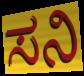
ಸನಿ